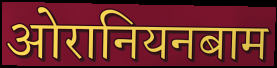
ओरानियनबाम